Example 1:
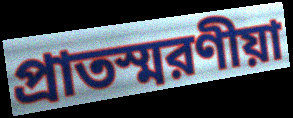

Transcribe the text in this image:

প্রাতস্মরণীয়া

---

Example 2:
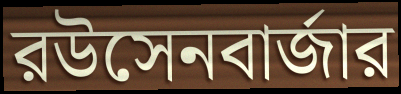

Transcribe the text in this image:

রউসেনবার্জার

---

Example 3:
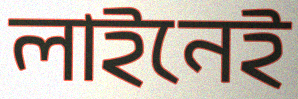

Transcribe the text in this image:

লাইনেই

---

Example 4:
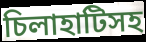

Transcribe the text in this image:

চিলাহাটিসহ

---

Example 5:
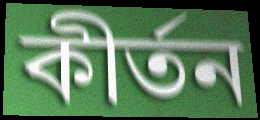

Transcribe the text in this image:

কীর্তন